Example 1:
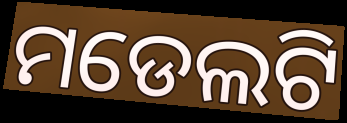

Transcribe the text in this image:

ମଡେଲଟି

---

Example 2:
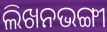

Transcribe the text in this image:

ଲିଖନଭଙ୍ଗୀ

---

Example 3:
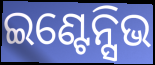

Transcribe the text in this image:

ଇଣ୍ଟେନ୍ସିଭ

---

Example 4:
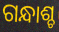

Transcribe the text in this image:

ଗନ୍ଧାଶ୍ଚ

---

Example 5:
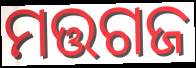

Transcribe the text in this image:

ମତ୍ତଗଜ